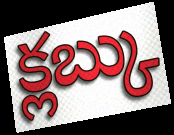
క్లబ్కు